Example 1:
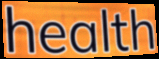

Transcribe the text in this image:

health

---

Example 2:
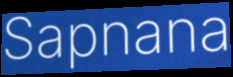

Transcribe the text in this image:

Sapnana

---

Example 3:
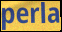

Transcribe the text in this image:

perla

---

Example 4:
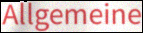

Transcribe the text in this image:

Allgemeine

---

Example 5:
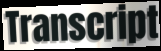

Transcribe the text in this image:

Transcript